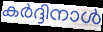
കർദ്ദിനാൾ